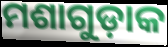
ମଶାଗୁଡ଼ାକ